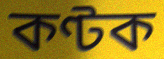
কণ্টক